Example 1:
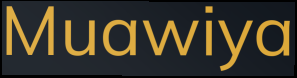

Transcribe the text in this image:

Muawiya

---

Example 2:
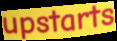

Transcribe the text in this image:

upstarts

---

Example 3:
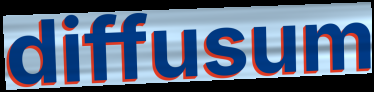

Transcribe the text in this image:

diffusum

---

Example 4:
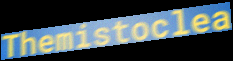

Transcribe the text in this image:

Themistoclea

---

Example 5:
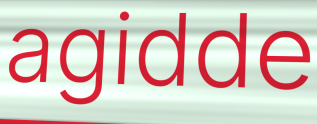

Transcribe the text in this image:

agidde